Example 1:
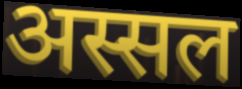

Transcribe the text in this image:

अस्सल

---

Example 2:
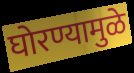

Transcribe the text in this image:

घोरण्यामुळे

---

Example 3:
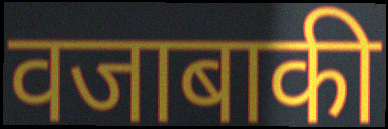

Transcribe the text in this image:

वजाबाकी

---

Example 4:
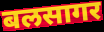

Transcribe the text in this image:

बलसागर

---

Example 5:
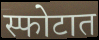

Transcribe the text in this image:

स्फोटात